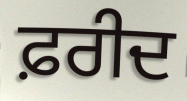
ਫ਼ਰੀਦ